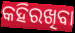
କହିରଖିବା